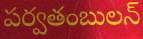
పర్వతంబులన్